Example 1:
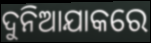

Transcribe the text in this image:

ଦୁନିଆଯାକରେ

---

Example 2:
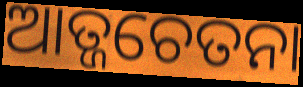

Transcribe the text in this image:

ଆତ୍ଜଚେତନା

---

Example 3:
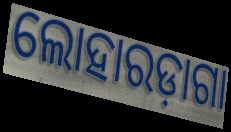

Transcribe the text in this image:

ଲୋହାରଡ଼ାଗା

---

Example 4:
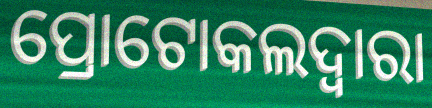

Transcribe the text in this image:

ପ୍ରୋଟୋକଲଦ୍ୱାରା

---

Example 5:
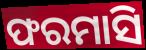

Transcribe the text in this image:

ଫରମାସି